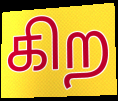
கிற